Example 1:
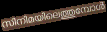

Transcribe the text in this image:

സിനിമയിലെത്തുമ്പോൾ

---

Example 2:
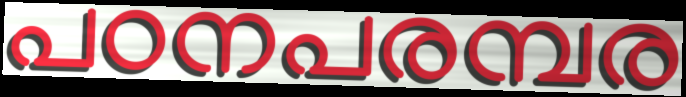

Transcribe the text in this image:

പഠനപരമ്പര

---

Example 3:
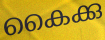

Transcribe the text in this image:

കൈക്കു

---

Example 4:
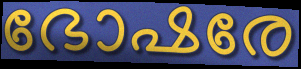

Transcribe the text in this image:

ഭോഷരേ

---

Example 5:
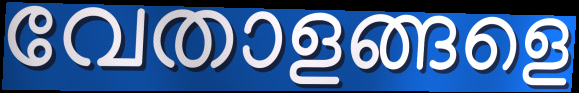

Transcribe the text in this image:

വേതാളങ്ങളെ